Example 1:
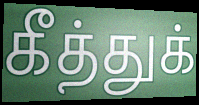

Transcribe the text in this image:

கீத்துக்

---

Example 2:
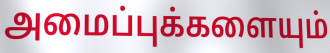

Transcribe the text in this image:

அமைப்புக்களையும்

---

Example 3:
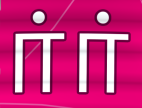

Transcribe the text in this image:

ர்ர்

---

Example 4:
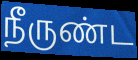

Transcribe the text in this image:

நீருண்ட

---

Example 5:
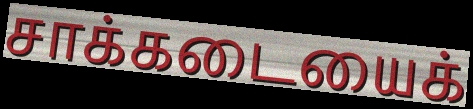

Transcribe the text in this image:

சாக்கடையைக்